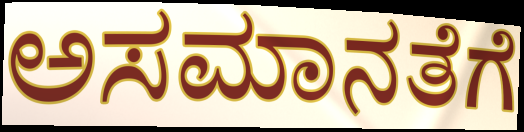
ಅಸಮಾನತೆಗೆ